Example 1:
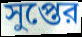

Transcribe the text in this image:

সুপ্তের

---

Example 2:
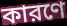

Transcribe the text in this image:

কারণে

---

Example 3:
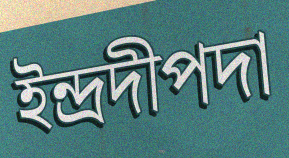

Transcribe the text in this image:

ইন্দ্রদীপদা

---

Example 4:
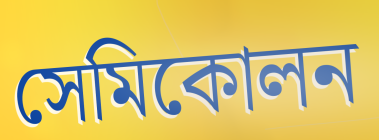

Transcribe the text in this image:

সেমিকোলন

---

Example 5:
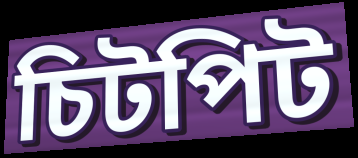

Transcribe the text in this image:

চিটপিট